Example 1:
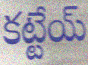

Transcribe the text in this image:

కట్టేయ్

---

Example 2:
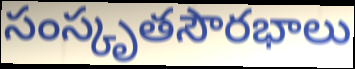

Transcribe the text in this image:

సంస్కృతసౌరభాలు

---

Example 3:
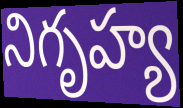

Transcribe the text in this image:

నిగృహ్య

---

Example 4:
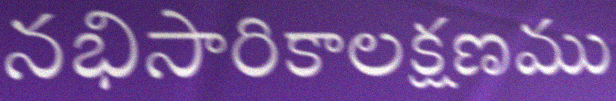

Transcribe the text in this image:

నభిసారికాలక్షణము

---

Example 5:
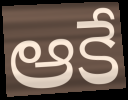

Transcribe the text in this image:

ఆకే